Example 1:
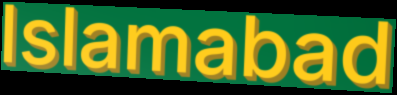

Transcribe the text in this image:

Islamabad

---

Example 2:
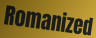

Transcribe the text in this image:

Romanized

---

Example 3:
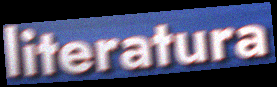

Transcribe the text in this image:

literatura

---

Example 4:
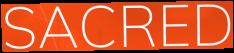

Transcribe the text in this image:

SACRED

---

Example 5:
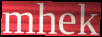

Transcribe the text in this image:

mhek